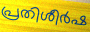
പ്രതിശീർഷ